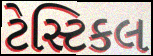
ટેસ્ટિકલ